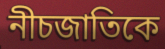
নীচজাতিকে